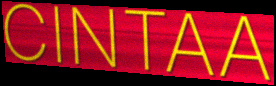
CINTAA